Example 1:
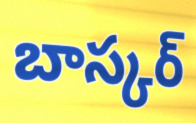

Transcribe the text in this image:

బాస్కర్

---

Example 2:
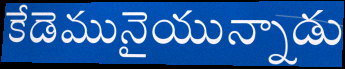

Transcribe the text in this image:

కేడెమునైయున్నాడు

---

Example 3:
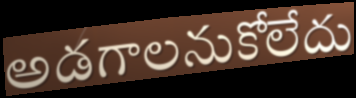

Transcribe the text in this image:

అడగాలనుకోలేదు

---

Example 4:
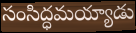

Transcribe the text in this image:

సంసిద్ధమయ్యాడు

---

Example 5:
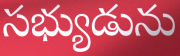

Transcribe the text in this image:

సభ్యుడును